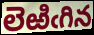
లెఱిఁగిన